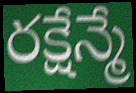
రక్షేన్మే